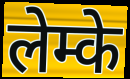
लेम्के